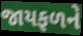
જાયફળને